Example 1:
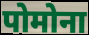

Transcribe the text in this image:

पोमोना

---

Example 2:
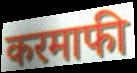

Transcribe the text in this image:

करमाफी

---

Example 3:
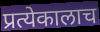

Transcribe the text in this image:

प्रत्येकालाच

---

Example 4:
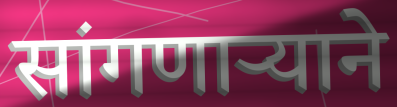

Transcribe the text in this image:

सांगणार्‍याने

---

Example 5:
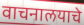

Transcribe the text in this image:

वाचनालयाचे